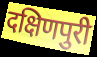
दक्षिणपुरी